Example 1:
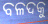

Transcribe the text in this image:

ବଳଦକୁ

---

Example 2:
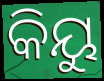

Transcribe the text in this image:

କିୟୁ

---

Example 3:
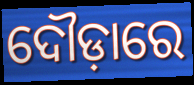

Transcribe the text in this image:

ଦୌଡ଼ାରେ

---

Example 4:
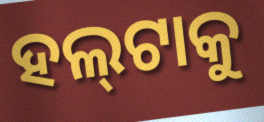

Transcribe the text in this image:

ହଲ୍‌ଟାକୁ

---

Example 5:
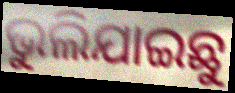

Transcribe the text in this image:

ଭୁଲିଯାଇଛୁ